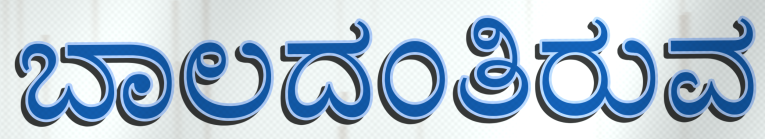
ಬಾಲದಂತಿರುವ